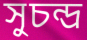
সুচন্দ্র